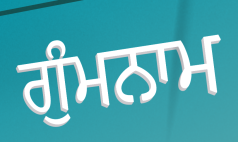
ਗੁੰਮਨਾਮ